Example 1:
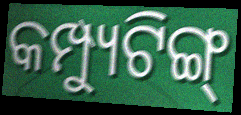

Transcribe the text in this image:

କମ୍ପ୍ୟୁଟିଙ୍ଗ୍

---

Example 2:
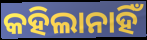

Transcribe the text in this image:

କହିଲାନାହିଁ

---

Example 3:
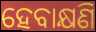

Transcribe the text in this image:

ହେବାକ୍ଷଣି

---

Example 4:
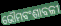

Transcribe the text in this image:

ଭୌମବଂଶାବଳୀ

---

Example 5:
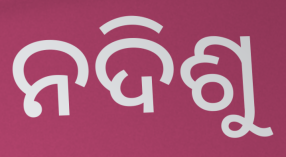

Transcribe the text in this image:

ନଦିଶୁ